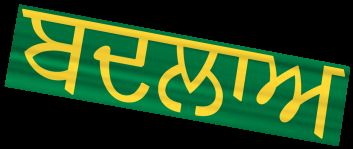
ਬਦਲਾਅ